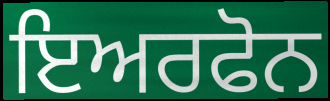
ਇਅਰਫੋਨ